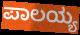
ಪಾಲಯ್ಯ